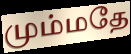
மும்மதே